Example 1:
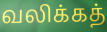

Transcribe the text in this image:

வலிக்கத்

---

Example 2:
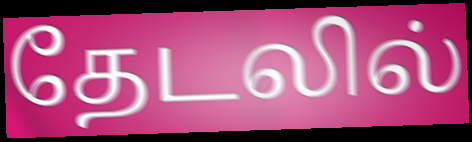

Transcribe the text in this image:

தேடலில்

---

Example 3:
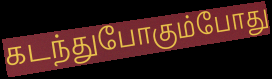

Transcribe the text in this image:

கடந்துபோகும்போது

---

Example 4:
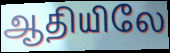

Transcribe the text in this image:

ஆதியிலே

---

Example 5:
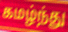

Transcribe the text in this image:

கமழ்ந்து